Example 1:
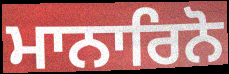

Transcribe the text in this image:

ਮਾਨਾਰਿਨੋ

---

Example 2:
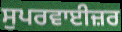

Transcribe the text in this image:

ਸੁਪਰਵਾਈਜ਼ਰ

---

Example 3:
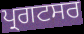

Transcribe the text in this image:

ਪ੍ਰਗਟਸਰ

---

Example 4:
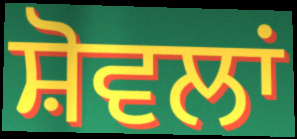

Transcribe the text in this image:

ਸ਼ੋਵਲਾਂ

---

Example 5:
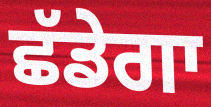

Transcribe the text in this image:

ਛੱਡੇਗਾ